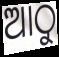
ଆଠୁ